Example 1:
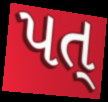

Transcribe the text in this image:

પત્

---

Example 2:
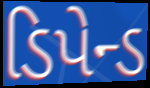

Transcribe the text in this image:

ડિપેન્ડ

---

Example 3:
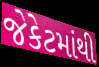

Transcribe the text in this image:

જેકેટમાંથી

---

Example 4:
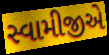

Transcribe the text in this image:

સ્વામીજીએ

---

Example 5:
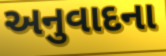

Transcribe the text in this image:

અનુવાદના